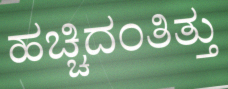
ಹಚ್ಚಿದಂತಿತ್ತು